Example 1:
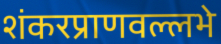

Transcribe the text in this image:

शंकरप्राणवल्लभे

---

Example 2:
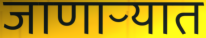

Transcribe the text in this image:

जाणाऱ्यात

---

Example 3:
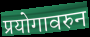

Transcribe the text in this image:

प्रयोगावरुन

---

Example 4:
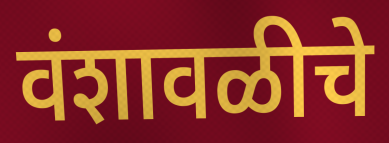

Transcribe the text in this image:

वंशावळीचे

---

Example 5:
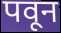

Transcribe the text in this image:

पवून